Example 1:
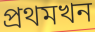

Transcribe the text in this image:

প্ৰথমখন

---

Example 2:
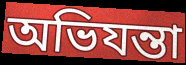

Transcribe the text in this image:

অভিযন্তা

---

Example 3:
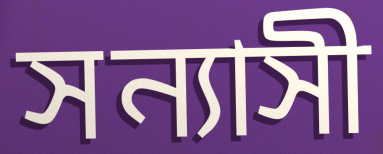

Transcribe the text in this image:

সন্যাসী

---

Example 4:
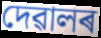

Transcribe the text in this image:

দেৱালৰ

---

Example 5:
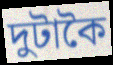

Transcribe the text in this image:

দুটাকৈ